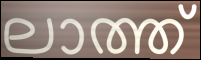
ലാത്ത്